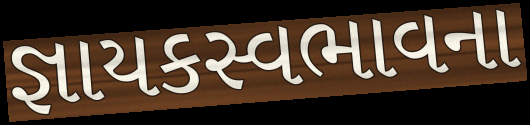
જ્ઞાયકસ્વભાવના